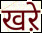
खऱे